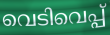
വെടിവെപ്പ്